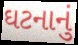
ઘટનાનું